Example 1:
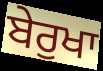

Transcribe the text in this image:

ਬੇਰੁਖਾ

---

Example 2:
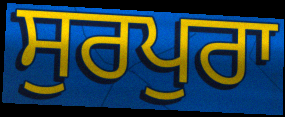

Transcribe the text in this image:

ਸੁਰਪੁਰਾ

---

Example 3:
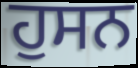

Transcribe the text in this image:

ਹੁਸਨ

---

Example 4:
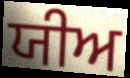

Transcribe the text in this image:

ਯੀਅ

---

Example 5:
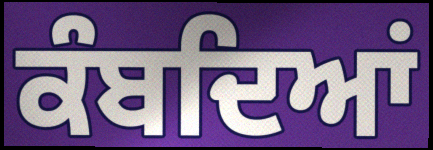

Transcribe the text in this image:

ਕੰਬਦਿਆਂ